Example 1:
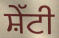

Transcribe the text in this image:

ਸ਼ੇੱਟੀ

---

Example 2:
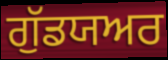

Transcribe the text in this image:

ਗੁੱਡਯਅਰ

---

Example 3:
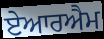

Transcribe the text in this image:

ਏਆਰਐਮ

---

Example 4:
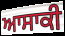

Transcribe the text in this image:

ਆਸਾਕੀ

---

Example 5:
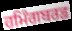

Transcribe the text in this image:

ਹਮਿੰਗਬਰਡ